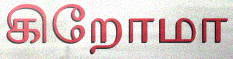
கிறோமா